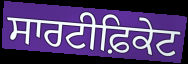
ਸਾਰਟੀਫ਼ਿਕੇਟ